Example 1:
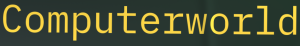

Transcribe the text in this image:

Computerworld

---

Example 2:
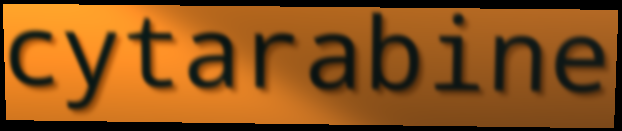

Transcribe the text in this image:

cytarabine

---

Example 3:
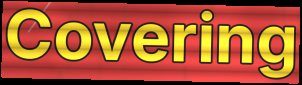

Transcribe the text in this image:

Covering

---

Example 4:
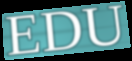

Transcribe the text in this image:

EDU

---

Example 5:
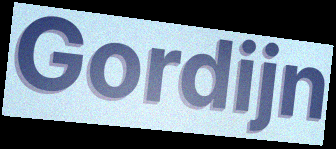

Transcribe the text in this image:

Gordijn